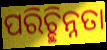
ପରିଚ୍ଛିନ୍ନତା